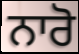
ਨਾਰੋ